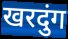
खरदुंग